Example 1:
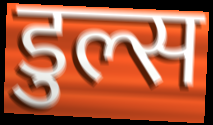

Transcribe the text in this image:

डुल्स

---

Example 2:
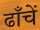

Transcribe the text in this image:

ढाँचें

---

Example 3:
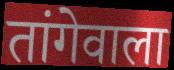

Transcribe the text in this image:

तांगेवाला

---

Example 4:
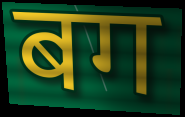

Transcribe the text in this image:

बग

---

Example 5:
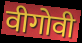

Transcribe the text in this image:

वीगोवी